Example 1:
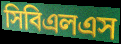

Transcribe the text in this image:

সিবিএলএস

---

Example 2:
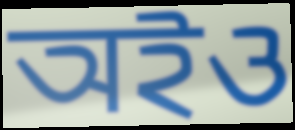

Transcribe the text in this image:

অইও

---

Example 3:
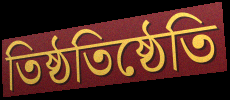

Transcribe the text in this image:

তিষ্ঠতিষ্ঠেতি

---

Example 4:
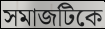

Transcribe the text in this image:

সমাজটিকে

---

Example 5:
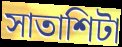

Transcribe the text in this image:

সাতাশিটা